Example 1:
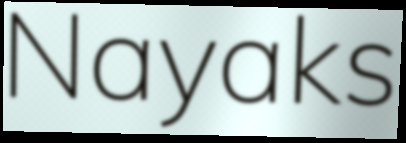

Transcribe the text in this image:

Nayaks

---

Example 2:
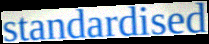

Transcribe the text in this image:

standardised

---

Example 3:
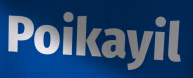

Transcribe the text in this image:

Poikayil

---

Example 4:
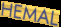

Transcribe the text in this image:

HEMAL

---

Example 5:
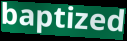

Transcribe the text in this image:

baptized